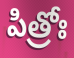
పిత్రోః